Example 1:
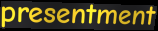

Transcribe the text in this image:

presentment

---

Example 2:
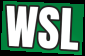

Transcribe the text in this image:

WSL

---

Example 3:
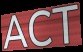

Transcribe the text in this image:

ACT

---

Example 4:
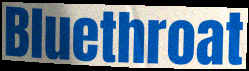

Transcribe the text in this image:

Bluethroat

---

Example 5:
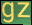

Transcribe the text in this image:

gz